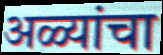
अळ्यांचा